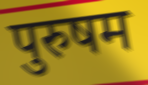
पुरुषम